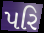
પરિ